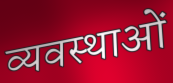
व्यवस्थाओें